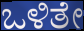
ಒಳಿತೇ